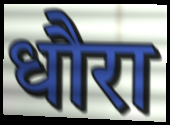
धौरा